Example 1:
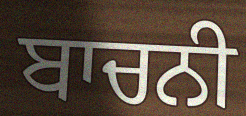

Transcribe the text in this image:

ਬਾਚਨੀ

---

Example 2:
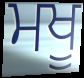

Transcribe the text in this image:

ਮਖੂ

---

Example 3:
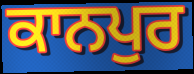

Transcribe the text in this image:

ਕਾਨਪੁਰ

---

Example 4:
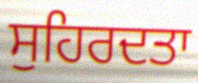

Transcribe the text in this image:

ਸੁਹਿਰਦਤਾ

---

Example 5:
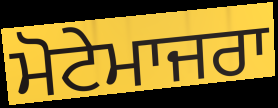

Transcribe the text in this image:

ਮੋਟੇਮਾਜਰਾ